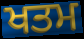
ਖਤਮ